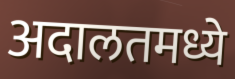
अदालतमध्ये